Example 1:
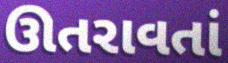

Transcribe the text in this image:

ઊતરાવતાં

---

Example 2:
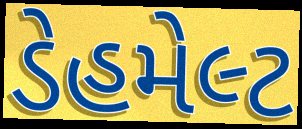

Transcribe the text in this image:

ડેહમેલ્ટ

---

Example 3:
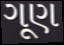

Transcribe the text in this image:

ગૂણ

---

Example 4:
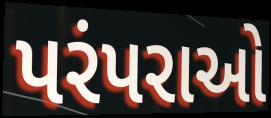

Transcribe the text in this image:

પરંપરાઓ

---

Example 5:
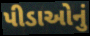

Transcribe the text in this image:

પીડાઓનું